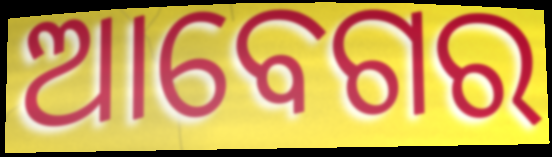
ଆବେଗର